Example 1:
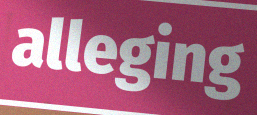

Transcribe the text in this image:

alleging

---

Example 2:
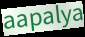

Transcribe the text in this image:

aapalya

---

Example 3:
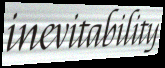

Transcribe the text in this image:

inevitability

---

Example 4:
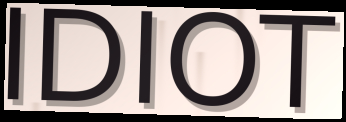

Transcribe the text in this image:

IDIOT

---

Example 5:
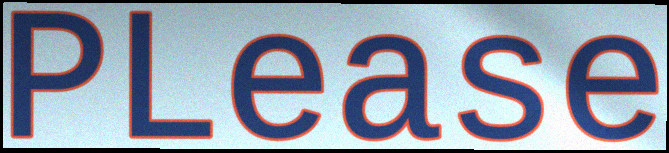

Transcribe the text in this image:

PLease